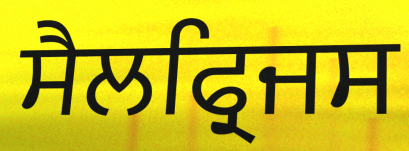
ਸੈਲਫ੍ਰਿਜਸ